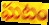
ఘటం